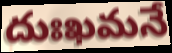
దుఃఖమనే